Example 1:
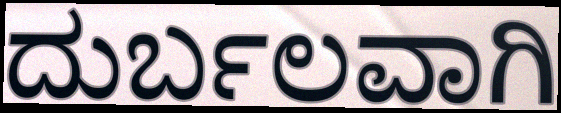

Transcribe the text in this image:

ದುರ್ಬಲವಾಗಿ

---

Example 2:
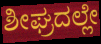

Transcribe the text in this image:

ಶೀಘ್ರದಲ್ಲೇ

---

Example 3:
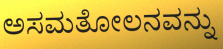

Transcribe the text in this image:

ಅಸಮತೋಲನವನ್ನು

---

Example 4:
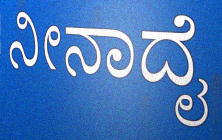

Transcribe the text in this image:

ನೀನಾದೈ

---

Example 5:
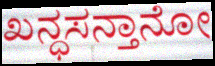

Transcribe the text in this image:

ಖನ್ಧಸನ್ತಾನೋ